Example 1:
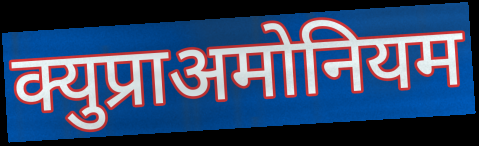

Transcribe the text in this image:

क्युप्राअमोनियम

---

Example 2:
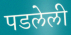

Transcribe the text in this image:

पडलेली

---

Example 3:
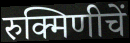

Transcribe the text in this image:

रुक्मिणीचें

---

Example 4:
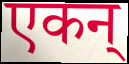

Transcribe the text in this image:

एकन्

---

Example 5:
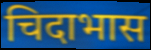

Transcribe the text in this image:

चिदाभास